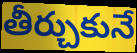
తీర్చుకునే